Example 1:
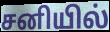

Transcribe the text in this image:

சனியில்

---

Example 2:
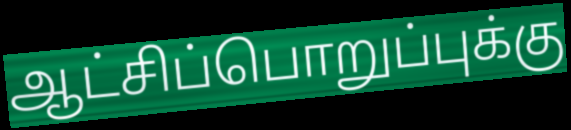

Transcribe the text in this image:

ஆட்சிப்பொறுப்புக்கு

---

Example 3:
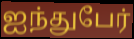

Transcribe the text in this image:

ஐந்துபேர்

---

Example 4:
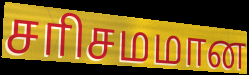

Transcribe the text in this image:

சரிசமமான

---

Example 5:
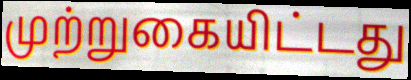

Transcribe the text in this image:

முற்றுகையிட்டது